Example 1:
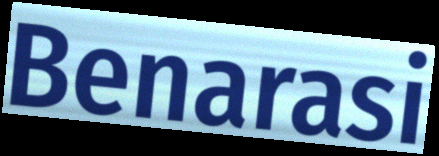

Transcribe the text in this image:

Benarasi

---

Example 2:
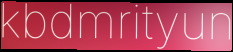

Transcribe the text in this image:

kbdmrityun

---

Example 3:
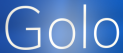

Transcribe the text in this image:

Golo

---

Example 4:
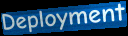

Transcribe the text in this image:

Deployment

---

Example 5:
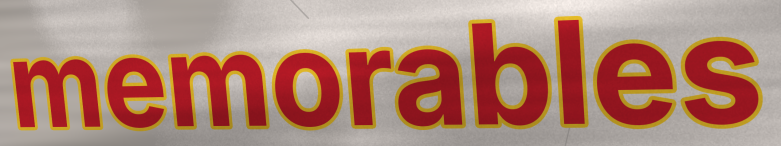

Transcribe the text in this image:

memorables